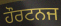
ਹੌਰਟਨਜ